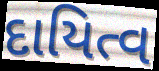
દાયિત્વ